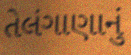
તેલંગાણાનું